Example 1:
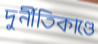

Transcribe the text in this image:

দুর্নীতিকাণ্ডে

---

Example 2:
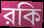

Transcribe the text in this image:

রকি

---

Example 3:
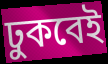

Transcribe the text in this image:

ঢুকবেই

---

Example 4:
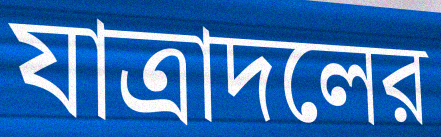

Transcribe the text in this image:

যাত্রাদলের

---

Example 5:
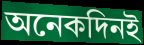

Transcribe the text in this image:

অনেকদিনই